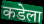
कडेला